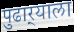
पुढार्याला